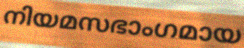
നിയമസഭാംഗമായ